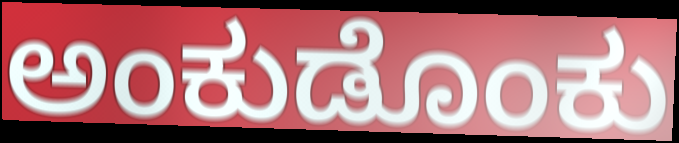
ಅಂಕುಡೊಂಕು